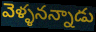
వెళ్ళనన్నాడు